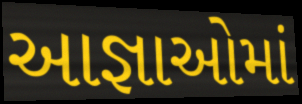
આજ્ઞાઓમાં